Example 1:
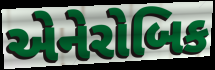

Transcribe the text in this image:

એનેરોબિક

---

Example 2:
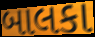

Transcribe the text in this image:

બાલકા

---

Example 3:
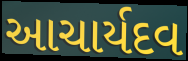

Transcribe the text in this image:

આચાર્યદવ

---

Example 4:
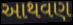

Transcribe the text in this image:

આથવણ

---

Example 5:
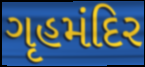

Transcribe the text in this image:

ગૃહમંદિર